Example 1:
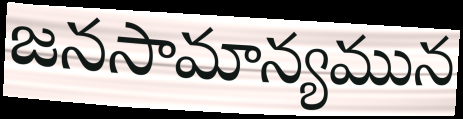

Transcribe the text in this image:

జనసామాన్యమున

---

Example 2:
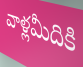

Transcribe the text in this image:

వాళ్లమీదికి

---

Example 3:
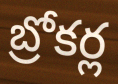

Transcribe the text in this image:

బ్రోకర్ల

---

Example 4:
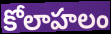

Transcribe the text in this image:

కోలాహలం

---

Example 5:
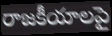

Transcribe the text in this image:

రాజకీయాలపై